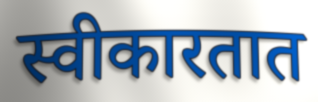
स्वीकारतात